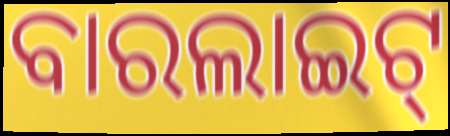
ବାରଲାଇଟ୍